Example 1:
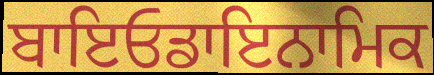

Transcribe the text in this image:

ਬਾਇਓਡਾਇਨਾਮਿਕ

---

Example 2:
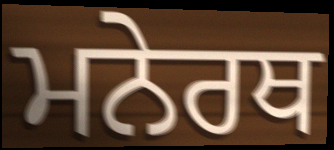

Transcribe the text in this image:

ਮਨੇਰਥ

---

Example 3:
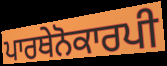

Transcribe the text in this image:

ਪਾਰਥੇਨੋਕਾਰਪੀ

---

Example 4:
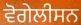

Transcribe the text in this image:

ਵੋਗੇਲੀਸਨ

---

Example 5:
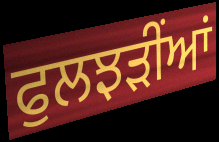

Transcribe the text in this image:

ਫੁਲਝੜੀਂਆਂ